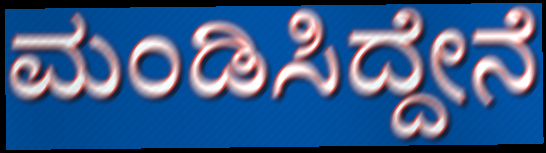
ಮಂಡಿಸಿದ್ದೇನೆ